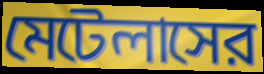
মেটেলাসের